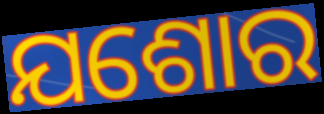
ଯଶୋର